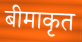
बीमाकृत